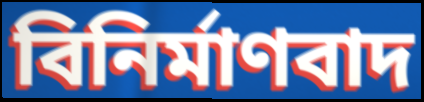
বিনিৰ্মাণবাদ